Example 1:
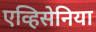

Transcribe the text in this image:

एव्हिसेनिया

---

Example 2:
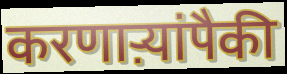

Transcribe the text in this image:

करणाऱ्‍यांपैकी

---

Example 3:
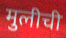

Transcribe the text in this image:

मुलीची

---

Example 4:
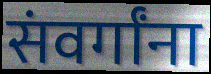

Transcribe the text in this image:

संवर्गांना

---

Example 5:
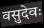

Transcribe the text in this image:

वसुदेवः